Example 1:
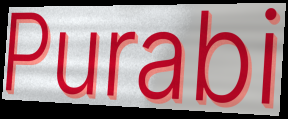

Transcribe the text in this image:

Purabi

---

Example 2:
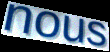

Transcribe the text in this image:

nous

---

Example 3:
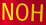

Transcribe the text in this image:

NOH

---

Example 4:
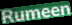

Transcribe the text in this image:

Rumeen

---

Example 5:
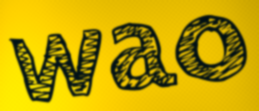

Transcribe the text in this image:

wao